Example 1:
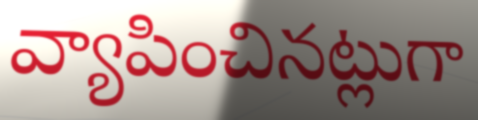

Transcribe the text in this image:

వ్యాపించినట్లుగా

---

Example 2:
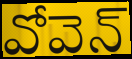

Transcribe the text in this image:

వోవెన్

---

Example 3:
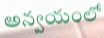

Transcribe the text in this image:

అన్వయంలో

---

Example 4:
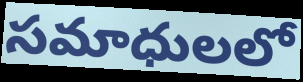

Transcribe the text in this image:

సమాధులలో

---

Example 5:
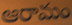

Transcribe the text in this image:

ఆరామం